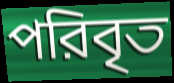
পরিবৃত